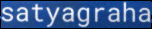
satyagraha